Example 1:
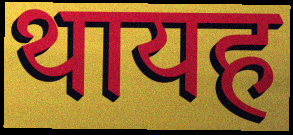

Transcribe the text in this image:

थायह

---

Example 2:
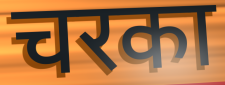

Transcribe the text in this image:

चरका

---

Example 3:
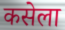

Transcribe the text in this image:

कसेला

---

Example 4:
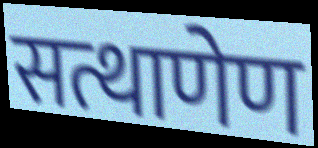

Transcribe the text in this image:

सत्थाणेण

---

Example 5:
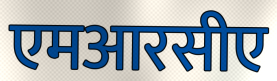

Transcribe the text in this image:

एमआरसीए